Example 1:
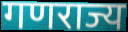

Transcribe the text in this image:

गणराज्य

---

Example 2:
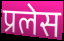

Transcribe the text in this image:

प्रलेस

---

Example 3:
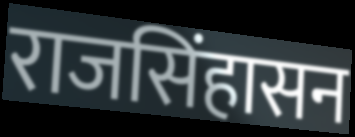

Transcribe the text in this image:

राजसिंहासन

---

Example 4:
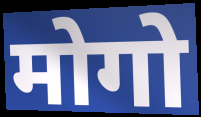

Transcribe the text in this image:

मोगो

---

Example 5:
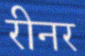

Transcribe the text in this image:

रीनर